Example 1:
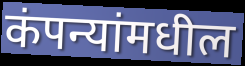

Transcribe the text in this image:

कंपन्यांमधील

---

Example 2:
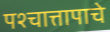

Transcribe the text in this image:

पश्चात्तापाचे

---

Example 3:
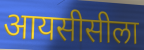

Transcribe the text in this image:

आयसीसीला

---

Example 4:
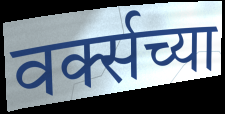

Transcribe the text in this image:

वर्क्‍सच्या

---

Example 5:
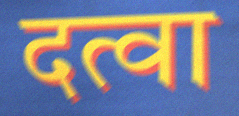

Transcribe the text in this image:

दत्वा